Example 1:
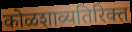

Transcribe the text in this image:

कोळशाव्यतिरिक्त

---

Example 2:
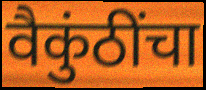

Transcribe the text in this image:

वैकुंठींचा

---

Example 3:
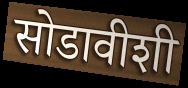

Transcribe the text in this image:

सोडावीशी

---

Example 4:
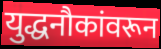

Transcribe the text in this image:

युद्धनौकांवरून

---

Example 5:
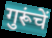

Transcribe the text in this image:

गुरूंचें